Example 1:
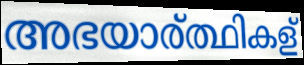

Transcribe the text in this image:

അഭയാര്ത്ഥികള്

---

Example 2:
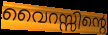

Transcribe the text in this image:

വൈറസ്സിന്റെ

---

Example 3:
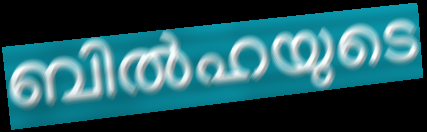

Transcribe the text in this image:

ബിൽഹയുടെ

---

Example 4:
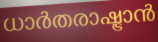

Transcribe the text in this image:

ധാർതരാഷ്ട്രാൻ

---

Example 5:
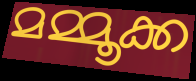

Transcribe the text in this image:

മമ്മൂക്ക